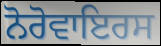
ਨੋਰੋਵਾਇਰਸ